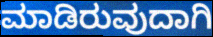
ಮಾಡಿರುವುದಾಗಿ